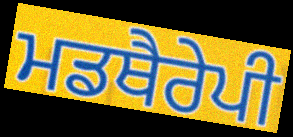
ਮਡਥੈਰੇਪੀ